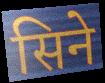
सिने